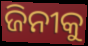
ଜିନୀକୁ